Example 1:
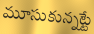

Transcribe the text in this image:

మూసుకున్నట్టే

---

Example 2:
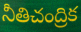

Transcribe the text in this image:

నీతిచంద్రిక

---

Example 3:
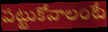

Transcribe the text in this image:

పట్టుకోవాలంటే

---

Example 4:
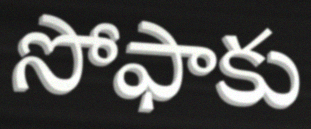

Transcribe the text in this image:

సోఫాకు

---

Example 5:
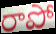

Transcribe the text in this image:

రాపో